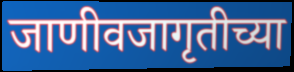
जाणीवजागृतीच्या